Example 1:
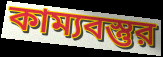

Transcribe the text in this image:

কাম্যবস্তুর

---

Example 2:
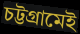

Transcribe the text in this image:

চট্টগ্রামেই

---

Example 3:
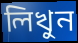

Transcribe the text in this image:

লিখুন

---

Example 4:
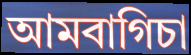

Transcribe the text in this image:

আমবাগিচা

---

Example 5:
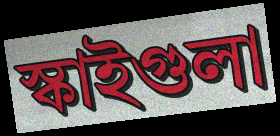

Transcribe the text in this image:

স্কাইগুলা